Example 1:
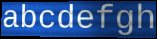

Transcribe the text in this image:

abcdefgh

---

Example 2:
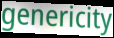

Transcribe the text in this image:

genericity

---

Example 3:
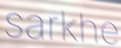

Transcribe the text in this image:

sarkhe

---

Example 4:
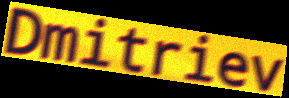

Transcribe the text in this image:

Dmitriev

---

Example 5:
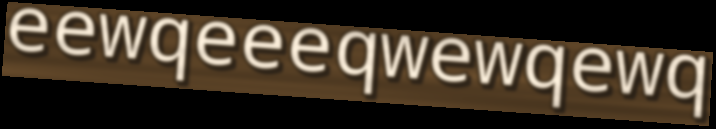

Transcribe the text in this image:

eewqeeeqwewqewq